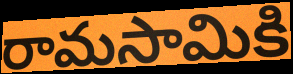
రామసామికి